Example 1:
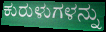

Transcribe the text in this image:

ಕುರುಳುಗಳನ್ನು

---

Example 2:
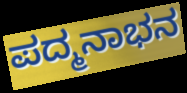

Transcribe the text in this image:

ಪದ್ಮನಾಭನ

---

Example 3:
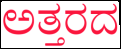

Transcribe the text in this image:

ಅತ್ತರದ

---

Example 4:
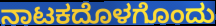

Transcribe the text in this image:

ನಾಟಕದೊಳಗೊಂದು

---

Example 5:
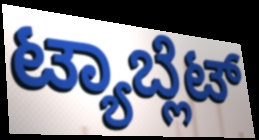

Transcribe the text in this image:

ಟ್ಯಾಬ್ಲೆಟ್